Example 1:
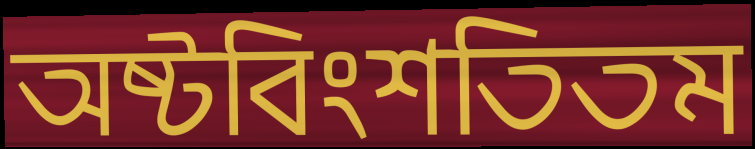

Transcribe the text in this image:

অষ্টবিংশতিতম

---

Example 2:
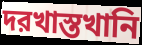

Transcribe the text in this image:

দরখাস্তখানি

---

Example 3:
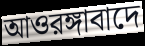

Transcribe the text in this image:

আওরঙ্গাবাদে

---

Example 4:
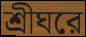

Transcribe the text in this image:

শ্রীঘরে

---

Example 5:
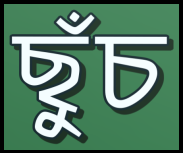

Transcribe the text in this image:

ছুঁচ